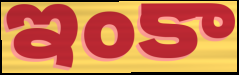
ఇంకా